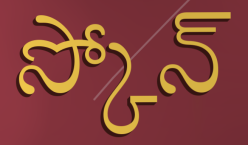
స్కోన్